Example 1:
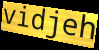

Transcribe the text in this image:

vidjeh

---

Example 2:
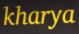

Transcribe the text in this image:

kharya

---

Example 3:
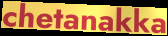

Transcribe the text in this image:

chetanakka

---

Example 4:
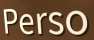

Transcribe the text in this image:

Perso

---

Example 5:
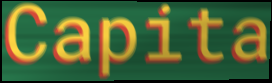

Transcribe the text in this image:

Capita